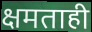
क्षमताही